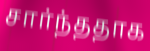
சார்ந்ததாக